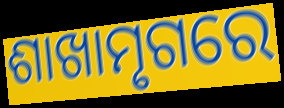
ଶାଖାମୃଗରେ